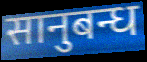
सानुबन्ध